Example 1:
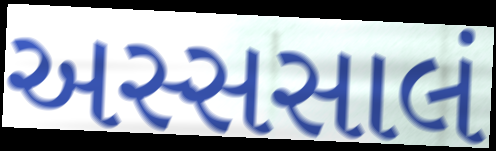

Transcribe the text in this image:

અસ્સસાલં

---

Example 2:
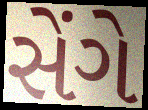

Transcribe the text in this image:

સેંગે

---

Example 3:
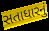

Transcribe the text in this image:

સતાધારનું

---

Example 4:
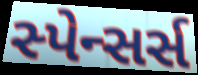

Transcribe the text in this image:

સ્પેન્સર્સ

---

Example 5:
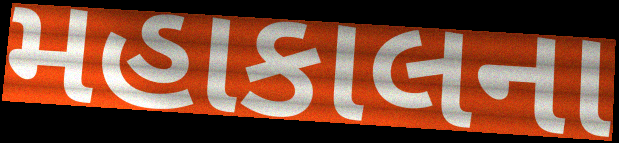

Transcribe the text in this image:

મહાકાલના